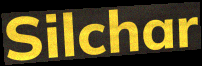
Silchar